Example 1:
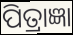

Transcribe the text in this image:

ପିତ୍ରାଜ୍ଞା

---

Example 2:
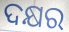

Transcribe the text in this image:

ଦକ୍ଷର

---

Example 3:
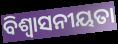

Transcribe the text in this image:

ବିଶ୍ୱାସନୀୟତା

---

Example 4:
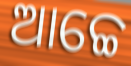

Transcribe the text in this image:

ଆଚ୍ଚେ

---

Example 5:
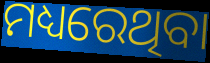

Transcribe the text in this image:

ମଧ୍ୟରେଥିବା